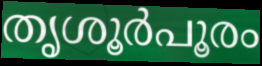
തൃശൂർപൂരം